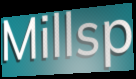
Millsp